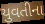
યુવતીના